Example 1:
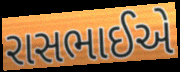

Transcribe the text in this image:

રાસભાઈએ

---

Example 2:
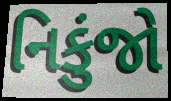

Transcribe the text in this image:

નિકુંજો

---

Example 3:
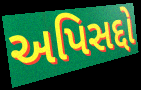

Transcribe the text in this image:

અપિસદ્દો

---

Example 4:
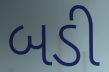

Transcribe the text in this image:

બડી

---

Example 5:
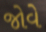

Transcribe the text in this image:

જોવે